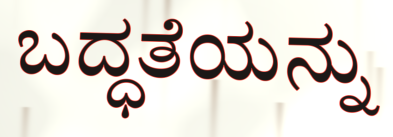
ಬದ್ಧತೆಯನ್ನು